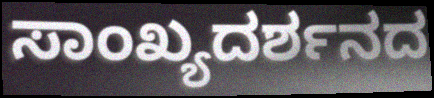
ಸಾಂಖ್ಯದರ್ಶನದ